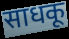
साधकू